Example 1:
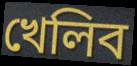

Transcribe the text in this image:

খেলিব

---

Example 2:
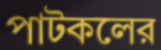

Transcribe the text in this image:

পাটকলের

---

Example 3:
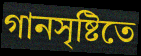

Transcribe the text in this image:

গানসৃষ্টিতে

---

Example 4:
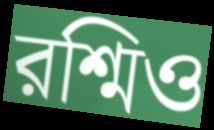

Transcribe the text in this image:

রশ্মিও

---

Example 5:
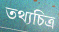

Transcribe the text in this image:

তথ্যচিত্র